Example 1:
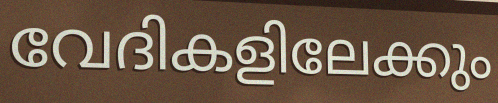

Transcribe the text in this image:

വേദികളിലേക്കും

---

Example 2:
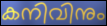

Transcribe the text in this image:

കനിവിനും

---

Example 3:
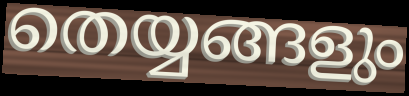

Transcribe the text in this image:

തെയ്യങ്ങളും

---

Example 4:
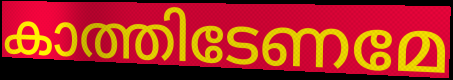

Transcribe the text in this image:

കാത്തിടേണമേ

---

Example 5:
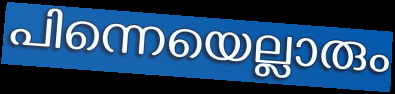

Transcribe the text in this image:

പിന്നെയെല്ലാരും